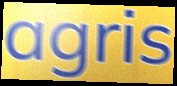
agris